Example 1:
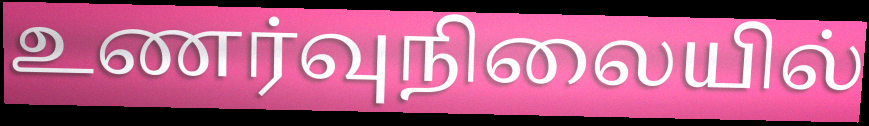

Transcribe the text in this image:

உணர்வுநிலையில்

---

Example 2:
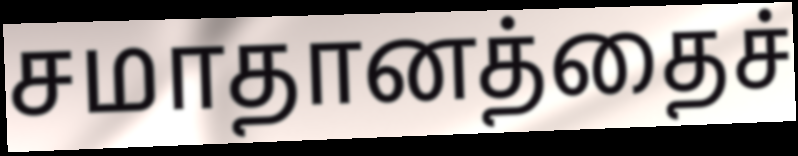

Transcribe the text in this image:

சமாதானத்தைச்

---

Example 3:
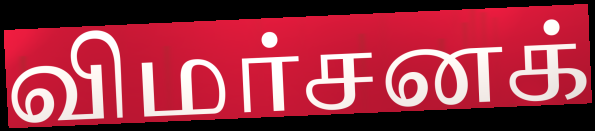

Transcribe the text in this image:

விமர்சனக்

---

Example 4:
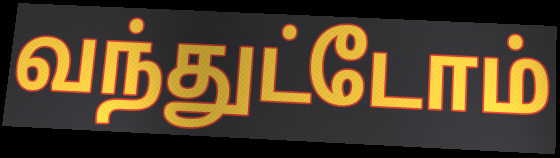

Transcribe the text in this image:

வந்துட்டோம்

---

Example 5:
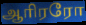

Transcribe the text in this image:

ஆரிரரோ